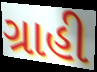
ગ્રાહી